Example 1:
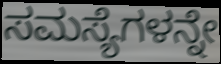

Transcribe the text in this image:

ಸಮಸ್ಯೆಗಳನ್ನೇ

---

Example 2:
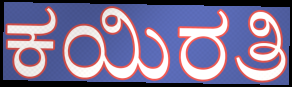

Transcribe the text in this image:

ಕಯಿರತಿ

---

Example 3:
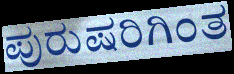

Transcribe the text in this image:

ಪುರುಷರಿಗಿಂತ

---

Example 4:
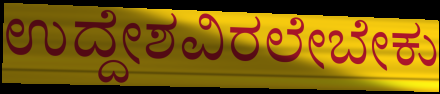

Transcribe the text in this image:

ಉದ್ದೇಶವಿರಲೇಬೇಕು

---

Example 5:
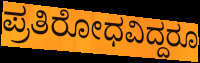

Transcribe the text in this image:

ಪ್ರತಿರೋಧವಿದ್ದರೂ